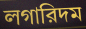
লগারিদম